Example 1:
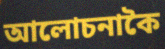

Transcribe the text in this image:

আলোচনাকৈ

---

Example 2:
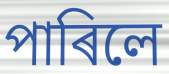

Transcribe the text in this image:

পাৰিলে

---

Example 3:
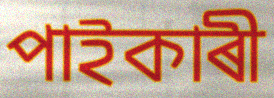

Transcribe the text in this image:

পাইকাৰী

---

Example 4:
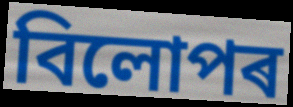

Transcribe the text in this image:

বিলোপৰ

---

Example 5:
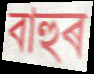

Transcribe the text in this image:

বাহুৰ